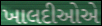
ખાલદીઓએ